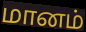
மானம்